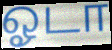
ஓடா